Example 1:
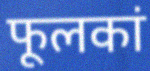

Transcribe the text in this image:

फूलकां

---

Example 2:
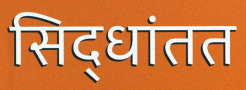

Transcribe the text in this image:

सिद्धांतत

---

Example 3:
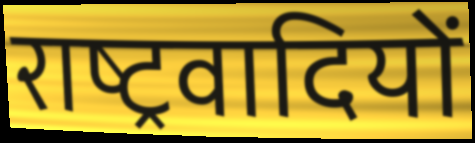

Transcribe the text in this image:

राष्ट्रवादियों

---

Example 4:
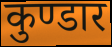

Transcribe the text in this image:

कुण्डार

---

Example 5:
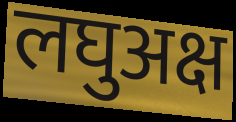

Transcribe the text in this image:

लघुअक्ष